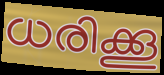
ധരിക്കൂ